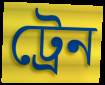
ট্রেন